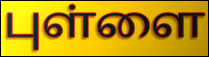
புள்ளை